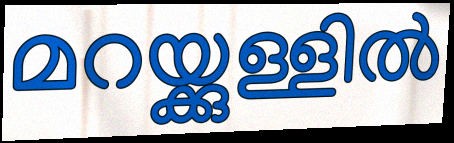
മറയ്ക്കുള്ളിൽ